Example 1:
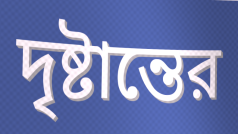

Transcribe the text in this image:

দৃষ্টান্তের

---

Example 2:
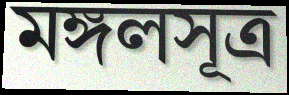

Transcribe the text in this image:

মঙ্গলসূত্র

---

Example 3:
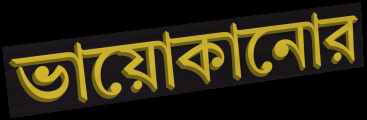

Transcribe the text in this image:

ভায়োকানোর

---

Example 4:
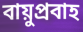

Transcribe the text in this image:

বায়ুপ্রবাহ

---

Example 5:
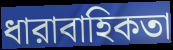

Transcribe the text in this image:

ধারাবাহিকতা